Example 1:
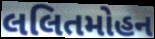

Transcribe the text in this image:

લલિતમોહન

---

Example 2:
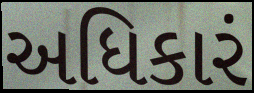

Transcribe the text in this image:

અધિકારં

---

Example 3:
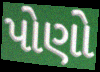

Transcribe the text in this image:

પોણો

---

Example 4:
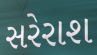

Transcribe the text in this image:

સરેરાશ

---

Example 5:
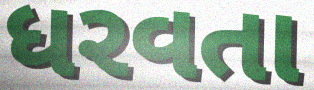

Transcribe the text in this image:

ધરવતા